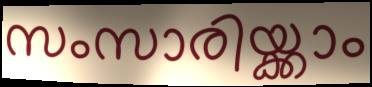
സംസാരിയ്ക്കാം